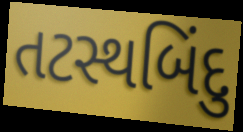
તટસ્થબિંદુ